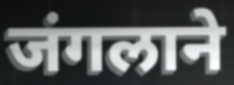
जंगलाने